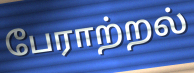
பேராற்றல்